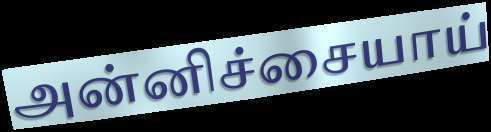
அன்னிச்சையாய்